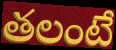
తలంటే